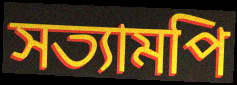
সত্যামপি